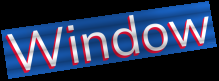
Window